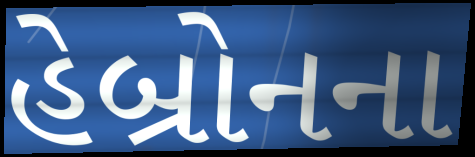
હેબ્રોનના